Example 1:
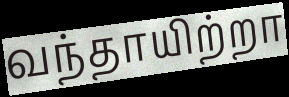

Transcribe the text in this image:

வந்தாயிற்றா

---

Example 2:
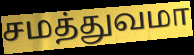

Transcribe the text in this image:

சமத்துவமா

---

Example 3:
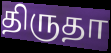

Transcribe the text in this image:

திருதா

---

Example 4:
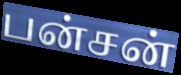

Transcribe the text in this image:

பன்சன்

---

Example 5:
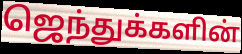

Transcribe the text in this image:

ஜெந்துக்களின்